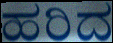
ಹರಿದ